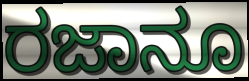
ರಜಾನೂ